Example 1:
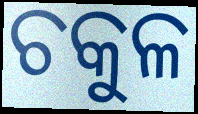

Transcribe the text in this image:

ଚକୁଳ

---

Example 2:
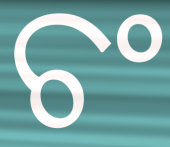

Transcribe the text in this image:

ଚଂ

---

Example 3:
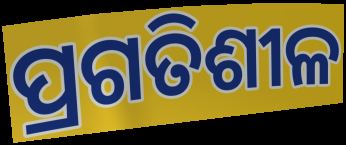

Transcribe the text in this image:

ପ୍ରଗତିଶୀଳ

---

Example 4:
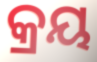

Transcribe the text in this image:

କ୍ରୟ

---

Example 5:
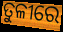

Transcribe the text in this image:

ତୁଳୀରେ